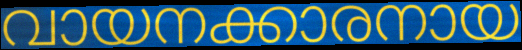
വായനക്കാരനായ